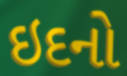
ઇદનો